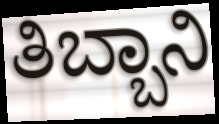
ತಿಬ್ಬಾನಿ